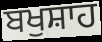
ਬਖੁਸ਼ਾਹ